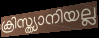
ക്രിസ്ത്യാനിയല്ല